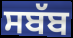
ਸਬੱਬ